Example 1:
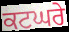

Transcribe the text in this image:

ਕਟਘਰੇ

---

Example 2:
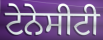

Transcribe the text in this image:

ਟੇਨੇਸੀਟੀ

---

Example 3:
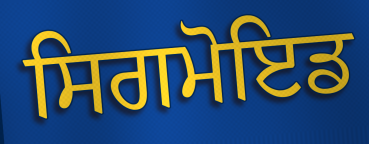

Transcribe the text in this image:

ਸਿਗਮੋਇਡ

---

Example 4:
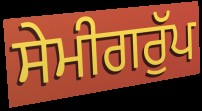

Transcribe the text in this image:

ਸੇਮੀਗਰੁੱਪ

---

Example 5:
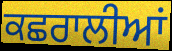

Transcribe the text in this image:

ਕਛਰਾਲੀਆਂ